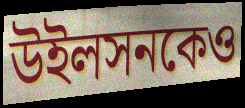
উইলসনকেও